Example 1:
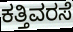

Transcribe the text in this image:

ಕತ್ತಿವರಸೆ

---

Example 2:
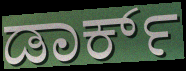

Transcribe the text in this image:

ಡಾರ್ಕ್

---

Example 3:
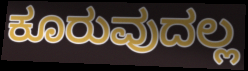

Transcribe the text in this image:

ಕೂರುವುದಲ್ಲ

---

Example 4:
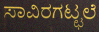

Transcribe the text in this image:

ಸಾವಿರಗಟ್ಟಲೆ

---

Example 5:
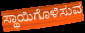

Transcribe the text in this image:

ಸ್ಥಾಯಿಗೊಳಿಸುವ